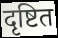
दृष्टित